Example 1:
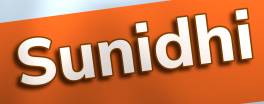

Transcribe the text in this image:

Sunidhi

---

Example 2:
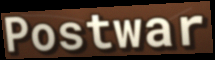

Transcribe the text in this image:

Postwar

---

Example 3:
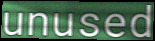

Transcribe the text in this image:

unused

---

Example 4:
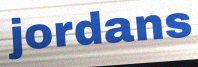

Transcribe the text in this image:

jordans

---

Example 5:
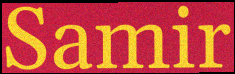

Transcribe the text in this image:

Samir